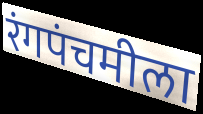
रंगपंचमीला